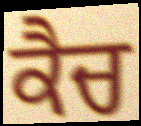
ਕੈਚ